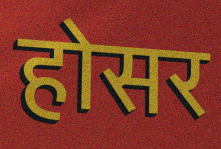
होसर